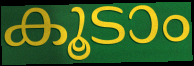
കൂടാം